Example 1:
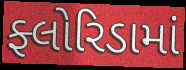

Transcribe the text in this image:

ફ્લોરિડામાં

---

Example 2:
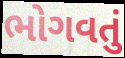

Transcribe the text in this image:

ભોગવતું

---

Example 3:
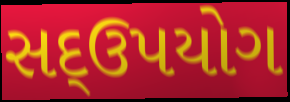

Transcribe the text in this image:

સદ્ઉપયોગ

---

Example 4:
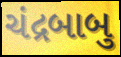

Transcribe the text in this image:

ચંદ્રબાબુ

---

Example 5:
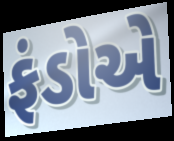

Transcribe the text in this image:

ફંડોએ